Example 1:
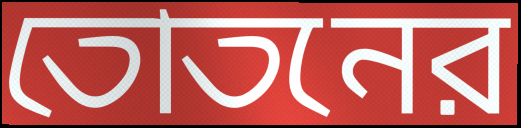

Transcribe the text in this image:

তোতনের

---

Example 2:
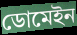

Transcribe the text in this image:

ডোমেইন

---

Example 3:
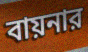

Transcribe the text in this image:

বায়নার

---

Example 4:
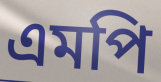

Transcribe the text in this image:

এমপি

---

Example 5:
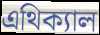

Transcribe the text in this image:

এথিক্যাল